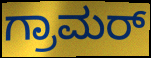
ಗ್ರಾಮರ್